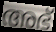
അഭ്